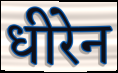
धीरेन